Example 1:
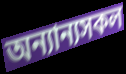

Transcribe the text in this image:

অন্যান্যসকল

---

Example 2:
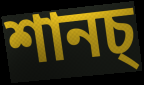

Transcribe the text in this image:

শানচ্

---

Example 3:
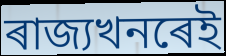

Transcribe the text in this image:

ৰাজ্যখনৰেই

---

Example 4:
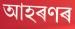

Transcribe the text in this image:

আহৰণৰ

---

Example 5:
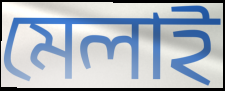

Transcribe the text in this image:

মেলাই